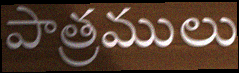
పాత్రములు